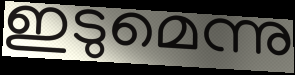
ഇടുമെന്നു